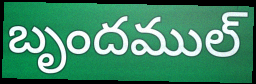
బృందముల్